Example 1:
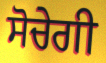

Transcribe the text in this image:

ਸੋਚੇਗੀ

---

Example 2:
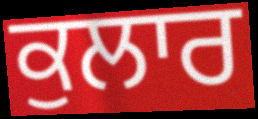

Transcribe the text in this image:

ਕੁਲਾਰ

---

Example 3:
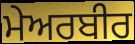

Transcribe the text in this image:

ਮੇਅਰਬੀਰ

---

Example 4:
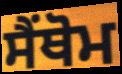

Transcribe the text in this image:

ਸੈਂਥੋਮ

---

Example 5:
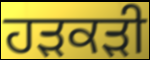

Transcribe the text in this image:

ਹੜਕੜੀ